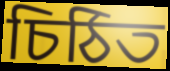
চিঠিত